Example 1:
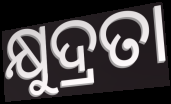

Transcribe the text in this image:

କ୍ଷୁଦ୍ରତା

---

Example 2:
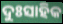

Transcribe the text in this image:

ଦୁଃସାହିକ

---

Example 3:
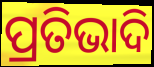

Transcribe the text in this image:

ପ୍ରତିଭାଦି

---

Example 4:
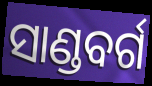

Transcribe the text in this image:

ସାଣ୍ଡବର୍ଗ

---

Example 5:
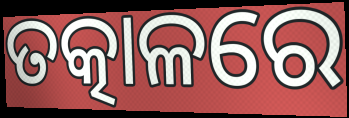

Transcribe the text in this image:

ତତ୍କାଳରେ